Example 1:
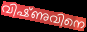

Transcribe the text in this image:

വിഷ്‌ണുവിനെ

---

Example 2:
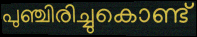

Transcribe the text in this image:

പുഞ്ചിരിച്ചുകൊണ്ട്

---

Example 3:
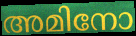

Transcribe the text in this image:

അമിനോ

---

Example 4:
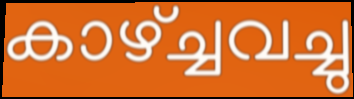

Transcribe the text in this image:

കാഴ്ച്ചവച്ചു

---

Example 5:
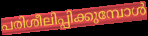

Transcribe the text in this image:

പരിശീലിപ്പിക്കുമ്പോൾ